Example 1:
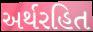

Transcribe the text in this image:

અર્થરહિત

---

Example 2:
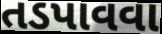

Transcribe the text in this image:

તડપાવવા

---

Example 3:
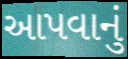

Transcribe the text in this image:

આપવાનું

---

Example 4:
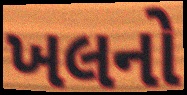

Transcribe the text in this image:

ખલનો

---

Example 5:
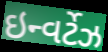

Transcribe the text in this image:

ઇન્વર્ટેઝ